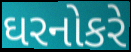
ઘરનોકરે